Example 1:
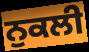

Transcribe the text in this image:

ਨੁਕਲੀ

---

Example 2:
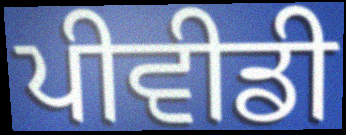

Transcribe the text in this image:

ਪੀਵੀਡੀ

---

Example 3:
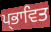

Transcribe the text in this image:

ਪ੍ਭਾਵਿਤ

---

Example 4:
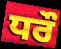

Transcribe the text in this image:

ਧਰੌ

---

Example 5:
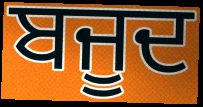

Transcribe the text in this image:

ਬਜੂਦ